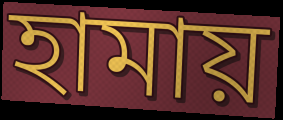
হামায়